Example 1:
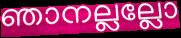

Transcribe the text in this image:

ഞാനല്ലല്ലോ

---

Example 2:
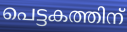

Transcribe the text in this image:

പെട്ടകത്തിന്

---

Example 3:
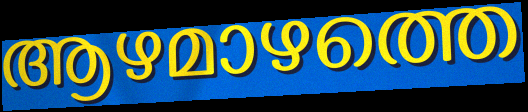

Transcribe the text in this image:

ആഴമാഴത്തെ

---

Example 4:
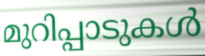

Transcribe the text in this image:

മുറിപ്പാടുകൾ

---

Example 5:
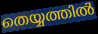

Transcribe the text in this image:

തെയ്യത്തിൽ